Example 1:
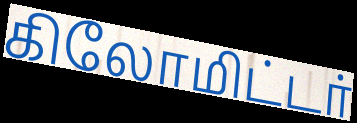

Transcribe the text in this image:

கிலோமிட்டர்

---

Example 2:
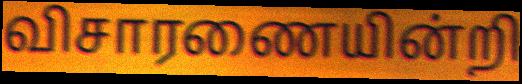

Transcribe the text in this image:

விசாரணையின்றி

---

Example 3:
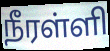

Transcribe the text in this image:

நீரள்ளி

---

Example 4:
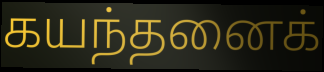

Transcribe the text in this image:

கயந்தனைக்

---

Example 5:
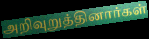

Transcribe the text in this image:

அறிவுறுத்தினார்கள்